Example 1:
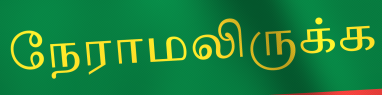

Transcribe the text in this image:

நேராமலிருக்க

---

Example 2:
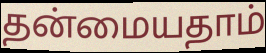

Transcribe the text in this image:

தன்மையதாம்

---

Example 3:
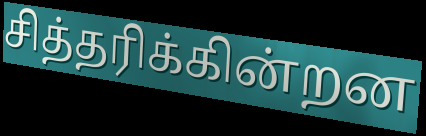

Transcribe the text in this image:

சித்தரிக்கின்றன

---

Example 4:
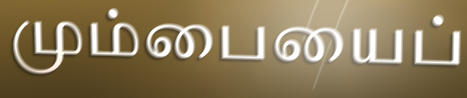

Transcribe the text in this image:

மும்பையைப்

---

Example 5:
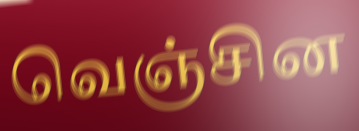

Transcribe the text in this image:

வெஞ்சின